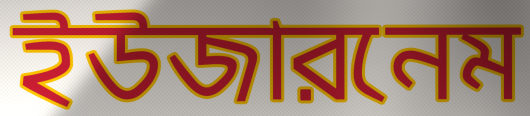
ইউজারনেম